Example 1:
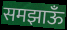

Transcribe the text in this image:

समझाऊँ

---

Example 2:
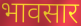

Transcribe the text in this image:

भावसार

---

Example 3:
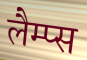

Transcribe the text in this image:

लैम्प्स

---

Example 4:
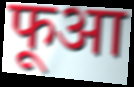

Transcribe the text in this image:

फूआ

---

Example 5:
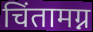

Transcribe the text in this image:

चिंतामग्न